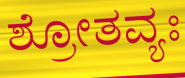
ಶ್ರೋತವ್ಯಃ